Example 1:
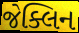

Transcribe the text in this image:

જેક્લિન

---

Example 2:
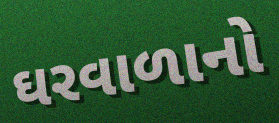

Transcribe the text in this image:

ઘરવાળાનો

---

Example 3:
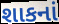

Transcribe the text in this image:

શાકનાં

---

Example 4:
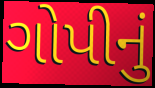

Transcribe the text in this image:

ગોપીનું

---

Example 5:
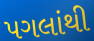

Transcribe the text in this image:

પગલાંથી